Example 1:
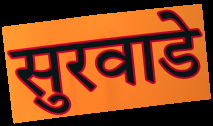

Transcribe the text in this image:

सुरवाडे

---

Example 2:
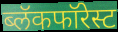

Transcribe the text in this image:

ब्लॅकफॉरेस्ट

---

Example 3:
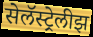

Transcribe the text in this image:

सेलॅस्ट्रेलीझ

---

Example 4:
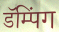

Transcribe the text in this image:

डॅम्पिंग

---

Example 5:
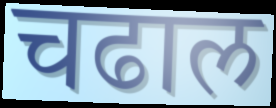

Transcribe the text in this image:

चढाल